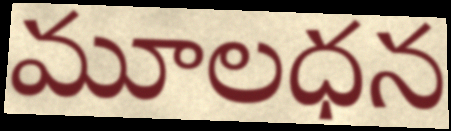
మూలధన